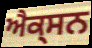
ਐਕ੍ਸਨ